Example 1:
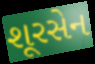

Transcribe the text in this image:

શૂરસેન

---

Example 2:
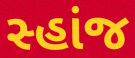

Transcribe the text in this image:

સ્હાંજ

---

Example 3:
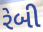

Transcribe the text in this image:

રેબી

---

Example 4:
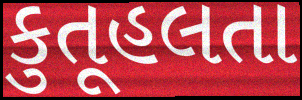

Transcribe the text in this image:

કુતૂહલતા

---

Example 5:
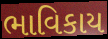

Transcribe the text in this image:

ભાવિકાય